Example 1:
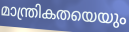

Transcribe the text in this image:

മാന്ത്രികതയെയും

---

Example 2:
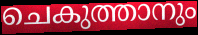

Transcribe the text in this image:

ചെകുത്താനും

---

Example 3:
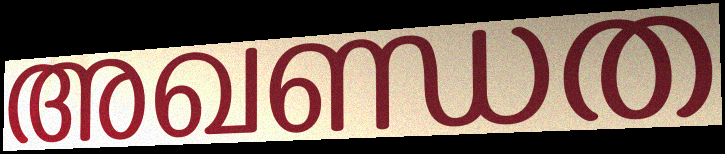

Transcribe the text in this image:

അഖണ്ഡത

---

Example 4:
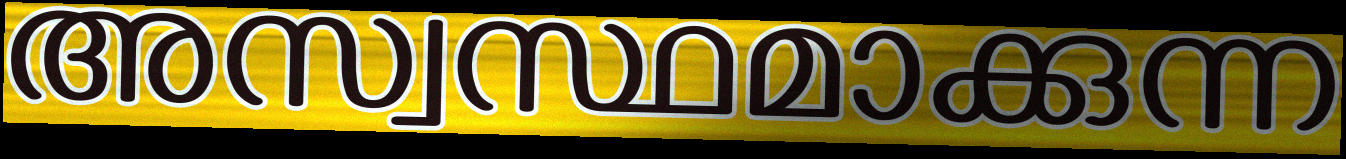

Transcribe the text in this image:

അസ്വസ്ഥമാക്കുന്ന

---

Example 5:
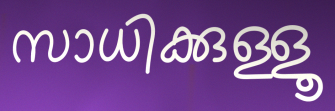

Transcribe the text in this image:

സാധിക്കുള്ളൂ